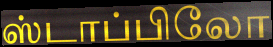
ஸ்டாப்பிலோ